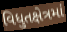
વિધુતક્ષેત્રમાં